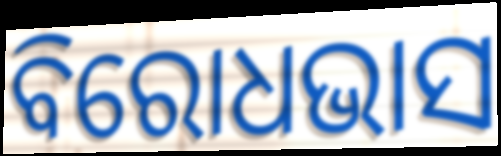
ବିରୋଧଭାସ